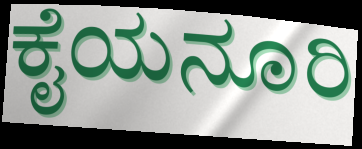
ಕೈಯನೂರಿ